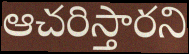
ఆచరిస్తారని